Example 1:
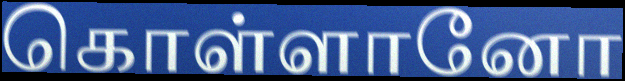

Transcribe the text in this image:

கொள்ளானோ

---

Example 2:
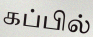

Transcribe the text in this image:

கப்பில்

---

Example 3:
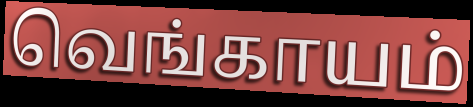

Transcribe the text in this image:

வெங்காயம்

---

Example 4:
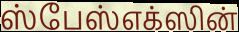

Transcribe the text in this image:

ஸ்பேஸ்எக்ஸின்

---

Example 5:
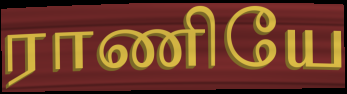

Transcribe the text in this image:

ராணியே